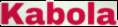
Kabola